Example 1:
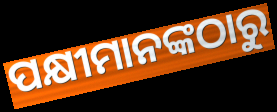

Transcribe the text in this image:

ପକ୍ଷୀମାନଙ୍କଠାରୁ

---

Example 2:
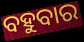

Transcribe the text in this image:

ବହୁବାର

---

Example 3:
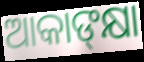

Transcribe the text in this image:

ଆକାଙ୍‌କ୍ଷା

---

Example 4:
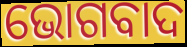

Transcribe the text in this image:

ଭୋଗବାଦ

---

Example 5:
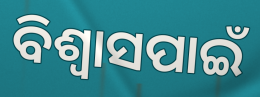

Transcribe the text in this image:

ବିଶ୍ୱାସପାଇଁ